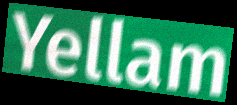
Yellam